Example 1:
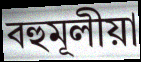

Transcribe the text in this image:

বহুমূলীয়া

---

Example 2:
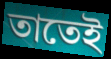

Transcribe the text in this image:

তাতেই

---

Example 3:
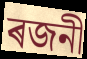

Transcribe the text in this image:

ৰজনী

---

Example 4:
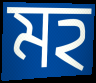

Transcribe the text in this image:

মহ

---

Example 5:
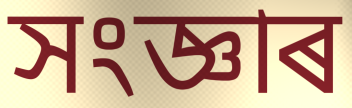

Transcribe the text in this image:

সংজ্ঞাৰ